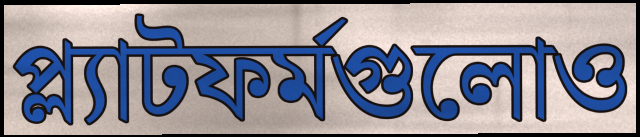
প্ল্যাটফর্মগুলোও